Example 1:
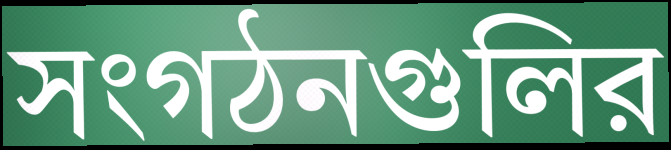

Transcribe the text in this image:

সংগঠনগুলির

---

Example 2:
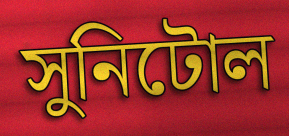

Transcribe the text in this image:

সুনিটোল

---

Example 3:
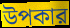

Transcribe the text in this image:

উপকার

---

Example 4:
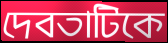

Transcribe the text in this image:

দেবতাটিকে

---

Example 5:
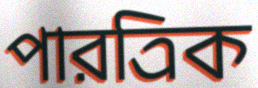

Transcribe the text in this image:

পারত্রিক